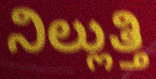
ನಿಲ್ಲುತ್ತಿ